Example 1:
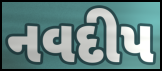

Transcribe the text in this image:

નવદીપ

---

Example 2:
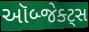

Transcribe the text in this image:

ઑબ્જેક્ટ્સ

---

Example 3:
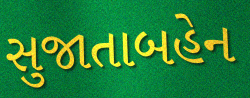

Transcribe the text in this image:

સુજાતાબહેન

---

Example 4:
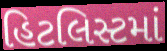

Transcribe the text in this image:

હિટલિસ્ટમાં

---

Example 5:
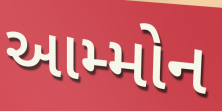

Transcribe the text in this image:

આમ્મોન